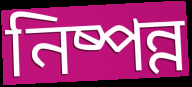
নিষ্পন্ন